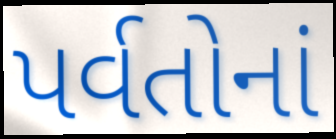
પર્વતોનાં